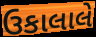
ઉકાલાલે